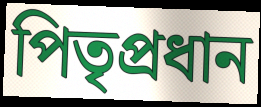
পিতৃপ্ৰধান